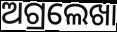
ଅଗ୍ରଲେଖା